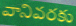
వానివరకు